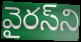
వైరస్‌ని